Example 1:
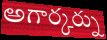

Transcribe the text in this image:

అగార్కర్ను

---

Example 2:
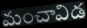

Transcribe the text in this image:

మంచావిడ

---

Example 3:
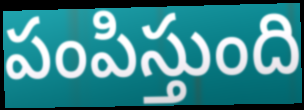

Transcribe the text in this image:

పంపిస్తుంది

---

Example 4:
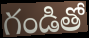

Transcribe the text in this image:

గండితో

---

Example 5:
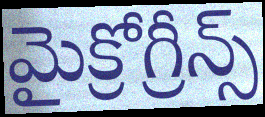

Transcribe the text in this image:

మైక్రోగ్రీన్స్